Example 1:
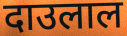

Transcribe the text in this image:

दाउलाल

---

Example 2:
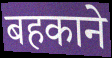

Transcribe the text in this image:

बहकाने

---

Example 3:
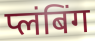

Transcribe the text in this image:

प्लंबिंग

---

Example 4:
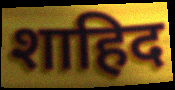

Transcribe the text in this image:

शाहिद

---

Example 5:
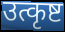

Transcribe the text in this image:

उत्कृष्ट